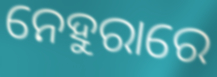
ନେହୁରାରେ